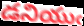
డనియుఁ